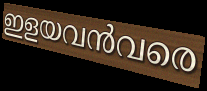
ഇളയവൻവരെ